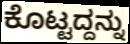
ಕೊಟ್ಟದ್ದನ್ನು